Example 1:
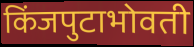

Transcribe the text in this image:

किंजपुटाभोवती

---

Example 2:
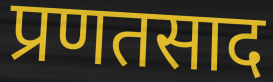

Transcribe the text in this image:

प्रणतसाद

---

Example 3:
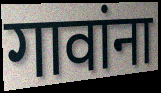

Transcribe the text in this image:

गावांना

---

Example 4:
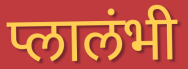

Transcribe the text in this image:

प्लालंभी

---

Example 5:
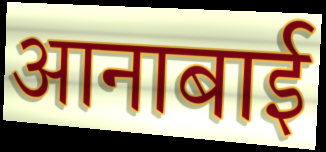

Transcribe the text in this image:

आनाबाई